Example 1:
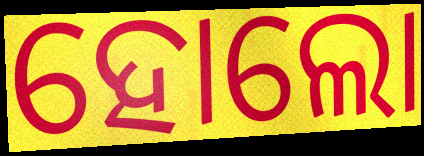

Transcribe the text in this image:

ହୋଲୋ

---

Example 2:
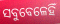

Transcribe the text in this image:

ସବୁବେଳେହିଁ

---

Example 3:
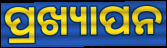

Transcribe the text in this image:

ପ୍ରଖ୍ୟାପନ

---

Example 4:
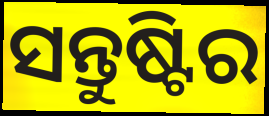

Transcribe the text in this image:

ସନ୍ତୁଷ୍ଟିର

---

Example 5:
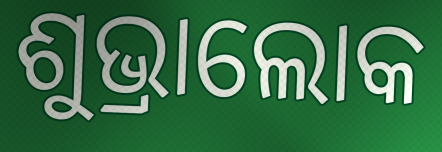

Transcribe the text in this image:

ଶୁଭ୍ରାଲୋକ